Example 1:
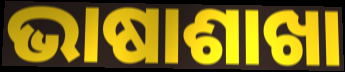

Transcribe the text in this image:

ଭାଷାଶାଖା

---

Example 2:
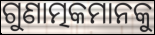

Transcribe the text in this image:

ଗୁଣାତ୍ମକମାନକୁ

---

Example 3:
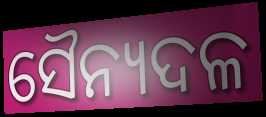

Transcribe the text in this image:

ସୈନ୍ୟଦଳ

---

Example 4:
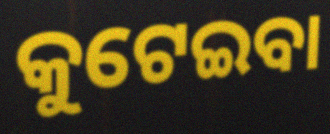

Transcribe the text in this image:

କୁଟେଇବା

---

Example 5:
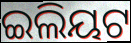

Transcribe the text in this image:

ଇଲିୟଟ